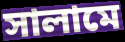
সালামে